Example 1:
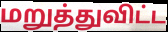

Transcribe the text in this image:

மறுத்துவிட்ட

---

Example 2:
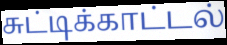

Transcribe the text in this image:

சுட்டிக்காட்டல்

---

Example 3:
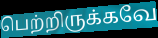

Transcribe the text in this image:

பெற்றிருக்கவே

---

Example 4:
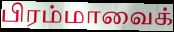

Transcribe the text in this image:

பிரம்மாவைக்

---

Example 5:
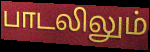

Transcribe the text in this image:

பாடலிலும்